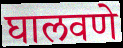
घालवणे